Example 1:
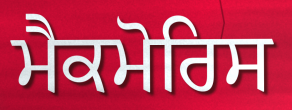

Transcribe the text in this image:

ਮੈਕਮੋਰਿਸ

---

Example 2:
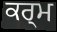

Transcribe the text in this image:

ਕਰ੍ਮ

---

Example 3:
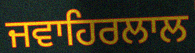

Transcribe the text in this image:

ਜਵਾਹਿਰਲਾਲ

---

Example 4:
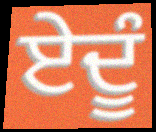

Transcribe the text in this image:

ਏਦੂੰ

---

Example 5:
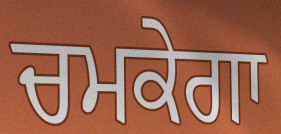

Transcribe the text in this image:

ਚਮਕੇਗਾ